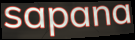
sapana